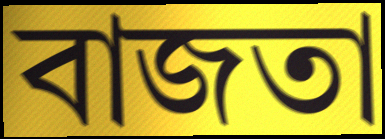
বাজতা